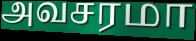
அவசரமா